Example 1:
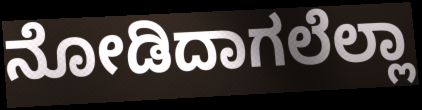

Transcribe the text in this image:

ನೋಡಿದಾಗಲೆಲ್ಲಾ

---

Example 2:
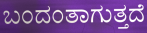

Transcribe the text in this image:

ಬಂದಂತಾಗುತ್ತದೆ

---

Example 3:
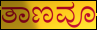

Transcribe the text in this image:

ತಾಣವೂ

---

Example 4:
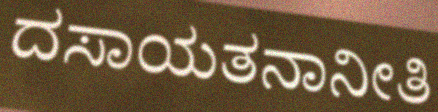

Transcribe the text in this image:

ದಸಾಯತನಾನೀತಿ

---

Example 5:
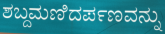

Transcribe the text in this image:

ಶಬ್ದಮಣಿದರ್ಪಣವನ್ನು